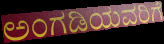
ಅಂಗಡಿಯವರಿಗೆ